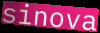
sinova